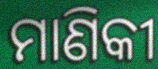
ମାଣିକୀ